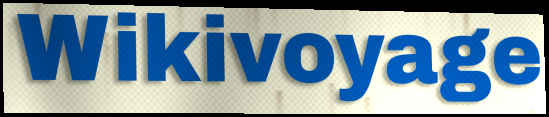
Wikivoyage